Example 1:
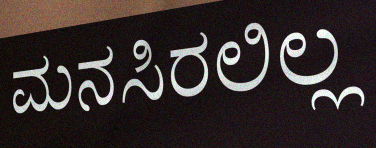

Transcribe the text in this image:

ಮನಸಿರಲಿಲ್ಲ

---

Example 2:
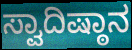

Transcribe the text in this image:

ಸ್ವಾದಿಷ್ಠಾನ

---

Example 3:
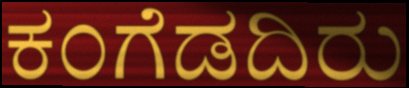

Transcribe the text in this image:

ಕಂಗೆಡದಿರು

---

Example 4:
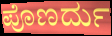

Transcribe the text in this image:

ಪೊಣರ್ದು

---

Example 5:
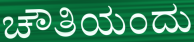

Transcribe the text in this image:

ಚೌತಿಯಂದು